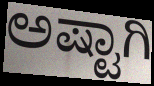
ಅಷ್ಟಾಗಿ